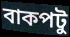
বাকপটু